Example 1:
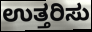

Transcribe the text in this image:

ಉತ್ತರಿಸು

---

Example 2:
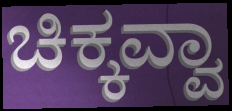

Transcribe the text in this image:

ಚಿಕ್ಕವ್ವಾ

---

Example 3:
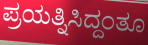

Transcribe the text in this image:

ಪ್ರಯತ್ನಿಸಿದ್ದಂತೂ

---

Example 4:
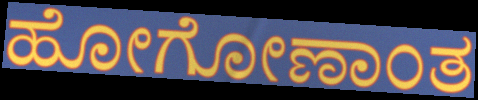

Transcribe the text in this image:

ಹೋಗೋಣಾಂತ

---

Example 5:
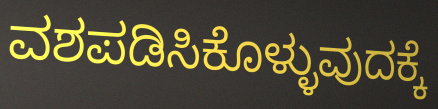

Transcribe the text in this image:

ವಶಪಡಿಸಿಕೊಳ್ಳುವುದಕ್ಕೆ